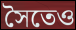
সৈতেও